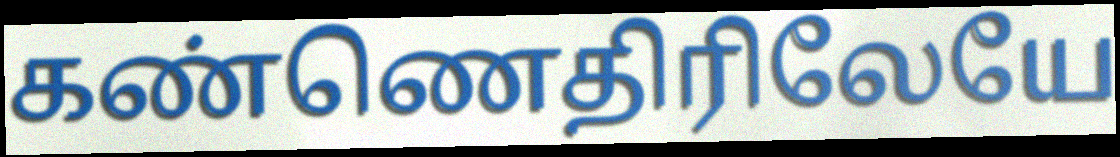
கண்ணெதிரிலேயே